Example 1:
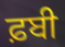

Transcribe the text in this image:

ਫ਼ਬੀ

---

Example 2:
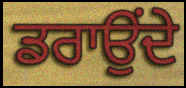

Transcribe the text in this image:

ਡਰਾਉਂਦੇ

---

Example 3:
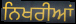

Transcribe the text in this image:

ਨਿਖਰੀਆਂ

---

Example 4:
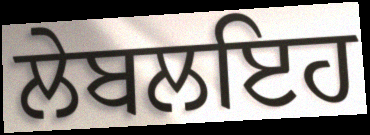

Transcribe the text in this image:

ਲੇਬਲਇਹ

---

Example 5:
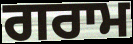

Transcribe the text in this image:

ਗਰਾਮ